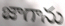
జాగాను